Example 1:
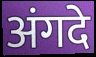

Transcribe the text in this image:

अंगदे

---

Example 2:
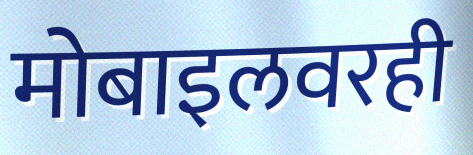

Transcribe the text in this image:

मोबाइलवरही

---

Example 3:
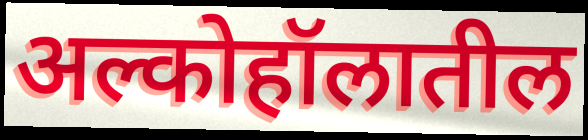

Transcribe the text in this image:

अल्कोहॉलातील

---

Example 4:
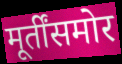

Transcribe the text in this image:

मूर्तींसमोर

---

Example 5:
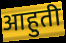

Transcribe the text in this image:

आहुती